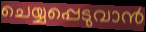
ചെയ്യപ്പെടുവാൻ